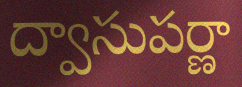
ద్వాసుపర్ణా